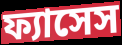
ফ্যাসেস